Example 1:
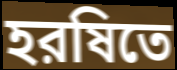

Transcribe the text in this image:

হরষিতে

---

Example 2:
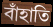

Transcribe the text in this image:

বাঁহাতি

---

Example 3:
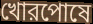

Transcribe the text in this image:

খোরপোষে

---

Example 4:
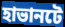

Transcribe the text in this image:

হাভানটে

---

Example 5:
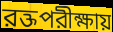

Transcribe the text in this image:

রক্তপরীক্ষায়